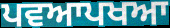
ਪਵਆਪਖਆ